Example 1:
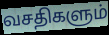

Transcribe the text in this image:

வசதிகளும்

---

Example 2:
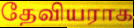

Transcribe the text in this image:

தேவியராக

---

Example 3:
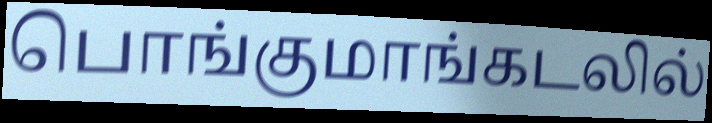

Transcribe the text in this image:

பொங்குமாங்கடலில்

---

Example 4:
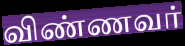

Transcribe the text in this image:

விண்ணவர்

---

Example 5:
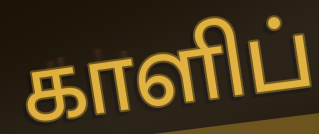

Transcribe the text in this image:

காளிப்